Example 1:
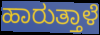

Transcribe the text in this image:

ಹಾರುತ್ತಾಳೆ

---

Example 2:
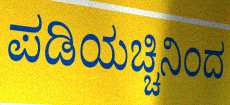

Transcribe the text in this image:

ಪಡಿಯಚ್ಚಿನಿಂದ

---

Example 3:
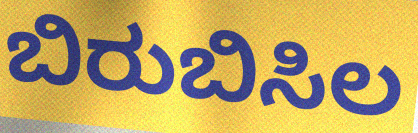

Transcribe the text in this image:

ಬಿರುಬಿಸಿಲ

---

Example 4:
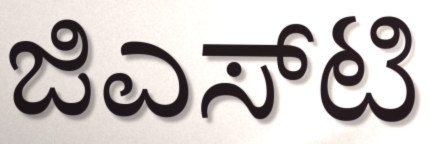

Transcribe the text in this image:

ಜಿಎಸ್‌ಟಿ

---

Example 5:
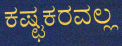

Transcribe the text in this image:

ಕಷ್ಟಕರವಲ್ಲ